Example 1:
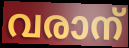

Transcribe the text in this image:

വരാന്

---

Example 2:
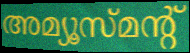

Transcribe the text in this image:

അമ്യൂസ്മന്റ്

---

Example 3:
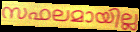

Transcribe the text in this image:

സഫലമായില്ല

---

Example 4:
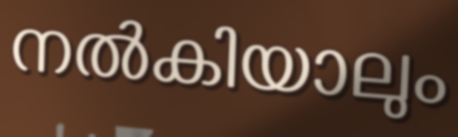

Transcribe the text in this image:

നൽകിയാലും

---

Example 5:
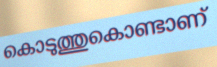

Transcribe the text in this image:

കൊടുത്തുകൊണ്ടാണ്